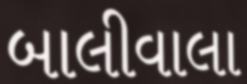
બાલીવાલા